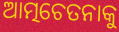
ଆତ୍ମଚେତନାକୁ